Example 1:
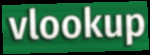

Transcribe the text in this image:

vlookup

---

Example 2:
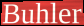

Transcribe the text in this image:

Buhler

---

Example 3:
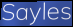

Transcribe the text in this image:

Sayles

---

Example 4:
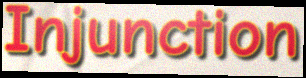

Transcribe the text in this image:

Injunction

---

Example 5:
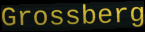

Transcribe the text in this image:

Grossberg